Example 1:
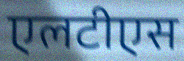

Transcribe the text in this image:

एलटीएस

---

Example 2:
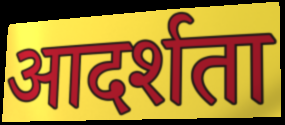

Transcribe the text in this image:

आदर्शता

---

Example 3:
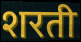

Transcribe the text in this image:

शरती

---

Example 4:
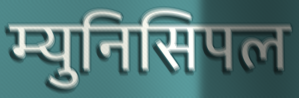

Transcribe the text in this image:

म्युनिसिपल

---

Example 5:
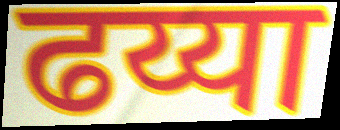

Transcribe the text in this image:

ढय्या